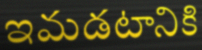
ఇమడటానికి